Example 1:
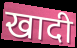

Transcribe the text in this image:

खादी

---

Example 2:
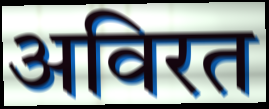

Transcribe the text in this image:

अविरत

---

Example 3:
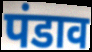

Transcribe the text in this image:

पंडाव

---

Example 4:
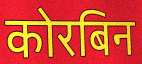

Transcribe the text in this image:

कोरबिन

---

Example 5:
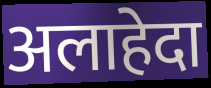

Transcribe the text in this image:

अलाहेदा